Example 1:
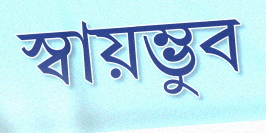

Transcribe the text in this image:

স্বায়ম্ভুব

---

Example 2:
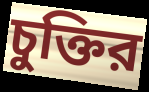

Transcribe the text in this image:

চুক্তির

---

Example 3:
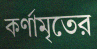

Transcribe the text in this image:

কর্ণামৃতের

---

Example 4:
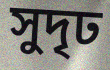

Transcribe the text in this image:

সুদৃঢ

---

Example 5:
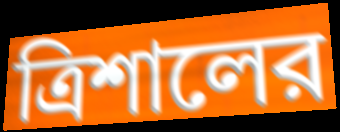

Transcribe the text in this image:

ত্রিশালের